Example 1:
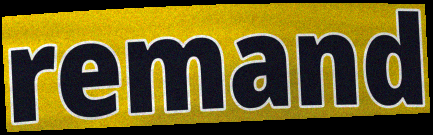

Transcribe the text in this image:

remand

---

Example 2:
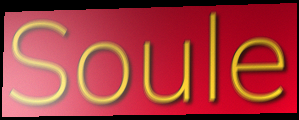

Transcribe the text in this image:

Soule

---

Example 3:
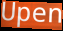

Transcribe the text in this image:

Upen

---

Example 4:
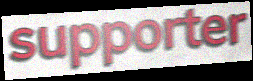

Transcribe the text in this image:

supporter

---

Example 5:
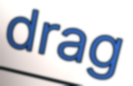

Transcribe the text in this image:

drag